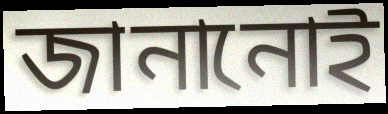
জানানোই